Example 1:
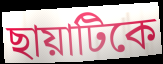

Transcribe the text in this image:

ছায়াটিকে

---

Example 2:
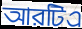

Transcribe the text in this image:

আরটিএ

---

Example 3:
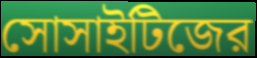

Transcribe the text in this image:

সোসাইটিজের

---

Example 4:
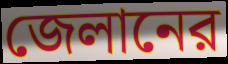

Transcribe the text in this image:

জেলানের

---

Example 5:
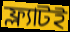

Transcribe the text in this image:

ফ্ল্যাটই